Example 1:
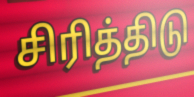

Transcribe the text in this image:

சிரித்திடு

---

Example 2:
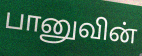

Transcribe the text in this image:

பானுவின்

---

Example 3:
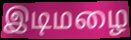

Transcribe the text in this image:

இடிமழை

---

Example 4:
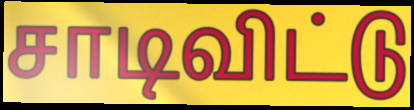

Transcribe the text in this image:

சாடிவிட்டு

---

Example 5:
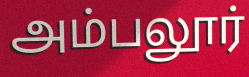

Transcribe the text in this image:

அம்பலூர்